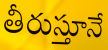
తీరుస్తూనే